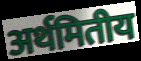
अर्थमितीय